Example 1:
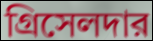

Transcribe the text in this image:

গ্রিসেলদার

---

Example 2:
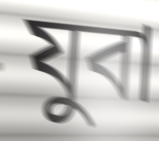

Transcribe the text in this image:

যুবা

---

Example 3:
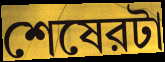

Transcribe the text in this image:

শেষেরটা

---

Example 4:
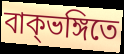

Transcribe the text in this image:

বাক্ভঙ্গিতে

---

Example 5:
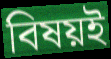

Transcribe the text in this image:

বিষয়ই